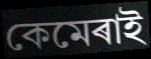
কেমেৰাই